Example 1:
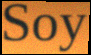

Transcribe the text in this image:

Soy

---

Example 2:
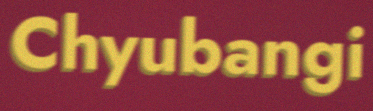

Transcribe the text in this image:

Chyubangi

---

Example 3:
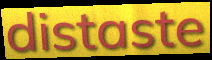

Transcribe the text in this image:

distaste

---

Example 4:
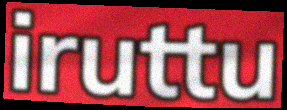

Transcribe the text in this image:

iruttu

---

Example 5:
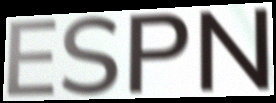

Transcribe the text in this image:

ESPN